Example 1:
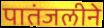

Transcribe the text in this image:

पातंजलीने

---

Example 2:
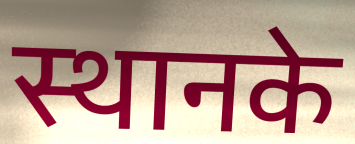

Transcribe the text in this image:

स्थानके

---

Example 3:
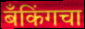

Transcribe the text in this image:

बँकिंगचा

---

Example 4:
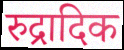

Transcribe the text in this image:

रुद्रादिक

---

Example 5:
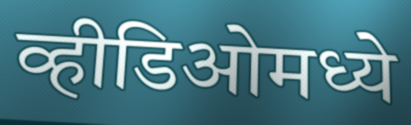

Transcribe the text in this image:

व्हीडिओमध्ये